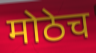
मोठेच